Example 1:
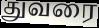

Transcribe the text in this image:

துவரை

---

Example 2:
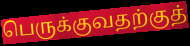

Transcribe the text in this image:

பெருக்குவதற்குத்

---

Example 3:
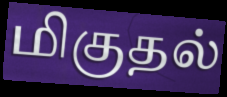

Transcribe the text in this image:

மிகுதல்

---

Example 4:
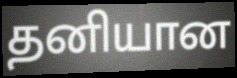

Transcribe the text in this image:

தனியான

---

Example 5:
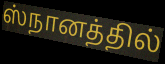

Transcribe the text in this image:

ஸ்நானத்தில்